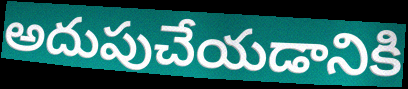
అదుపుచేయడానికి